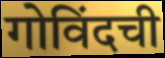
गोविंदची